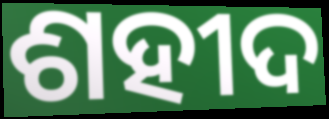
ଶହୀଦ